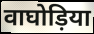
वाघोड़िया